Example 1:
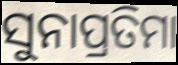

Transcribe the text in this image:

ସୁନାପ୍ରତିମା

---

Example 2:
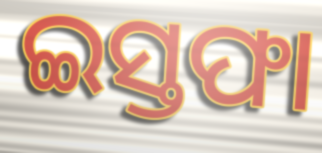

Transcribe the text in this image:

ଇସ୍ତଫା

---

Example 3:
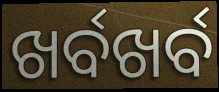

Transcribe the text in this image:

ଖର୍ବଖର୍ବ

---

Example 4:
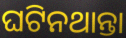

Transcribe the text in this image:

ଘଟିନଥାନ୍ତା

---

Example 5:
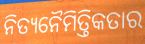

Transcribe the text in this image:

ନିତ୍ୟନୈମିତ୍ତିକତାର